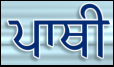
ਪਾਥੀ